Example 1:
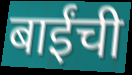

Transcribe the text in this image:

बाईंची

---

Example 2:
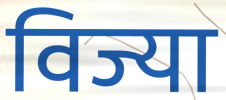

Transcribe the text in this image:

विज्या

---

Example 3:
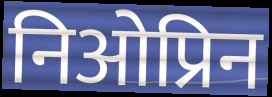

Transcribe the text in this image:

निओप्रिन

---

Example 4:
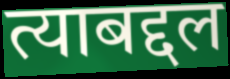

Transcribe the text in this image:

त्याबद्दल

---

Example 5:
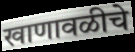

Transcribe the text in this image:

खाणावळीचे